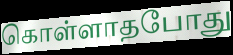
கொள்ளாதபோது